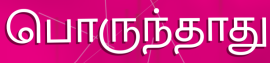
பொருந்தாது